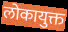
लोकायुक्त